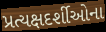
પ્રત્યક્ષદર્શીઓના